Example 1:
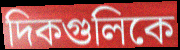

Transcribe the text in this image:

দিকগুলিকে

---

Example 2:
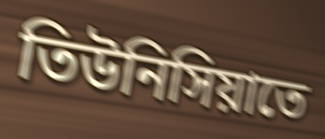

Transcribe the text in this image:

তিউনিসিয়াতে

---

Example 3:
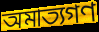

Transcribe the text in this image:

অমাত্যগণ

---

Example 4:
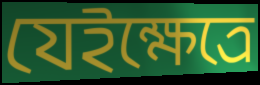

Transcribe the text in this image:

যেইক্ষেত্রে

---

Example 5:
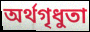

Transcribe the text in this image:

অর্থগৃধুতা